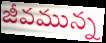
జీవమున్న